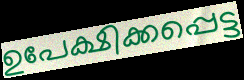
ഉപേക്ഷിക്കപ്പെട്ട